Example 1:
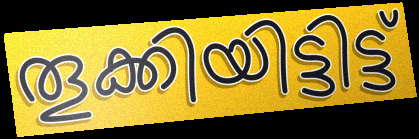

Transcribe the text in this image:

തൂക്കിയിട്ടിട്ട്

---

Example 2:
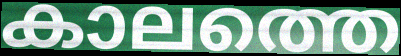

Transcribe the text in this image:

കാലത്തെ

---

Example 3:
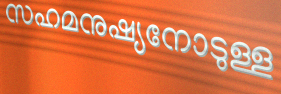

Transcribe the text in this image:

സഹമനുഷ്യനോടുള്ള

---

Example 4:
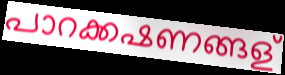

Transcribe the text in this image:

പാറക്കഷണങ്ങള്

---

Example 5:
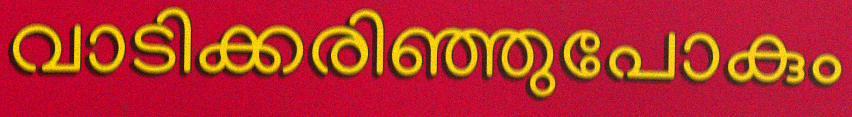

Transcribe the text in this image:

വാടിക്കരിഞ്ഞുപോകും